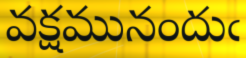
వక్షమునందుఁ